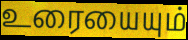
உரையையும்